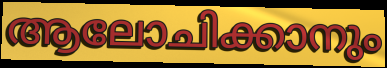
ആലോചിക്കാനും